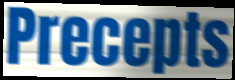
Precepts